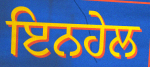
ਇਨਹੇਲ